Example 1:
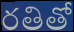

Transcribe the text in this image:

రతితో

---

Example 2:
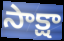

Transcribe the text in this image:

సాక్షా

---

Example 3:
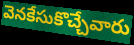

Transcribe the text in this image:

వెనకేసుకొచ్చేవారు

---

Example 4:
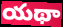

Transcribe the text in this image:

యథా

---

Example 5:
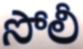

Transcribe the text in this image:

సోలీ